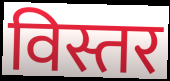
विस्तर